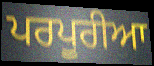
ਪਰਪੂਰੀਆ